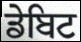
ਡੇਬਿਟ